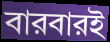
বারবারই